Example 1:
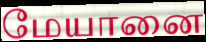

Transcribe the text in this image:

மேயானை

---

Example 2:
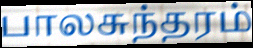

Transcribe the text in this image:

பாலசுந்தரம்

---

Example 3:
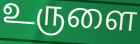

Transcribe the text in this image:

உருளை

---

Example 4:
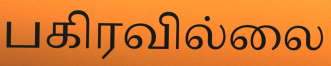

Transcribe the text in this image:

பகிரவில்லை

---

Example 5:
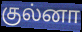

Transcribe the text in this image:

குல்னா